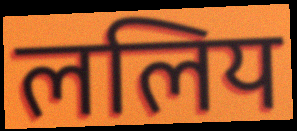
ललिय